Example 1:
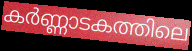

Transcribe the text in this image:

കർണ്ണാടകത്തിലെ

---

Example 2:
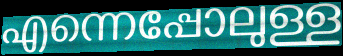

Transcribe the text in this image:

എന്നെപ്പോലുള്ള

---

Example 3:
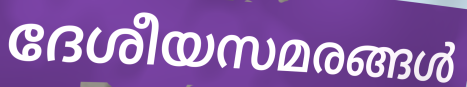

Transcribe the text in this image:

ദേശീയസമരങ്ങൾ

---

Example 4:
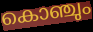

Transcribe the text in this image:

കൊഞ്ചും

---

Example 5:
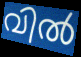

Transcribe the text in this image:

വിൽ